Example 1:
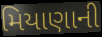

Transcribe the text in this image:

મિયાણાની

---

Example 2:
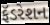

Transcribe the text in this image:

ફૅડરેશન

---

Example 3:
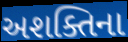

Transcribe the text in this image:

અશક્તિના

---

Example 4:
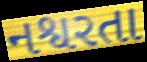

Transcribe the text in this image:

નશ્વરતા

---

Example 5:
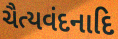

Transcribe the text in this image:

ચૈત્યવંદનાદિ